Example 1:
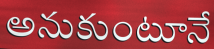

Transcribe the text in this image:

అనుకుంటూనే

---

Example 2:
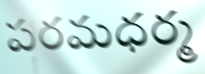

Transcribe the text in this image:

పరమధర్మ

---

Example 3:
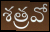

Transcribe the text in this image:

శత్రవో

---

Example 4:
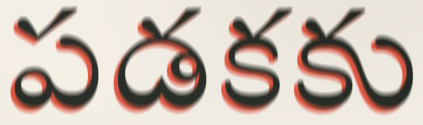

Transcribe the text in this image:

పడకకు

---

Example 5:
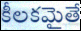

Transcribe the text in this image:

కీలకమైతే